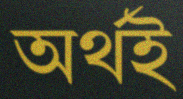
অৰ্থই